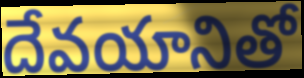
దేవయానితో